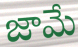
జామే